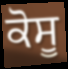
ਕੋਸੂ